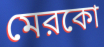
মেরকো